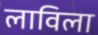
लाविला